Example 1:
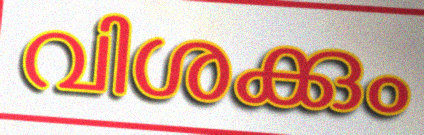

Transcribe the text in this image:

വിശക്കും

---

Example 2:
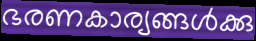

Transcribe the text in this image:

ഭരണകാര്യങ്ങൾക്കു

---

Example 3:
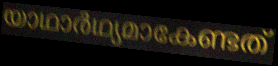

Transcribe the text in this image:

യാഥാർഥ്യമാകേണ്ടത്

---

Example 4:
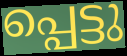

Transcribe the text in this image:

പ്പെട്ടു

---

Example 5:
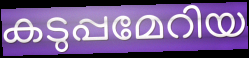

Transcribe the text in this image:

കടുപ്പമേറിയ